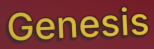
Genesis